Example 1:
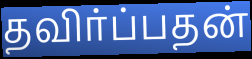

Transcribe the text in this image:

தவிர்ப்பதன்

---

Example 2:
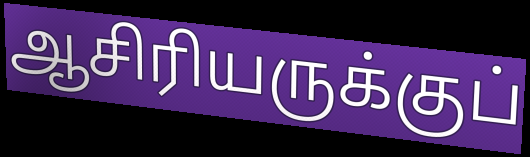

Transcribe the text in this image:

ஆசிரியருக்குப்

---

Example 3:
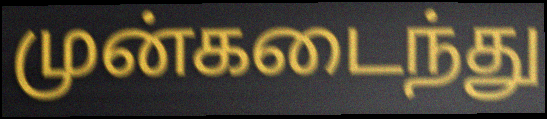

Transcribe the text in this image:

முன்கடைந்து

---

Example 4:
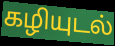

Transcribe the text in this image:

கழியுடல்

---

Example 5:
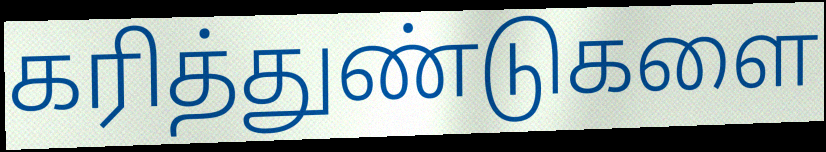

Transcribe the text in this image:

கரித்துண்டுகளை